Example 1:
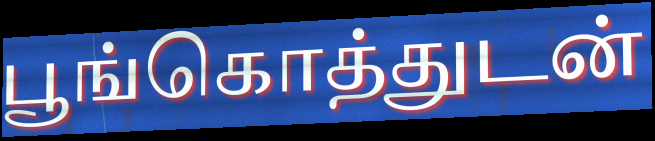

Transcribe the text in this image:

பூங்கொத்துடன்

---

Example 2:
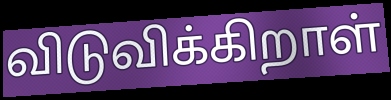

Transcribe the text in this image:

விடுவிக்கிறாள்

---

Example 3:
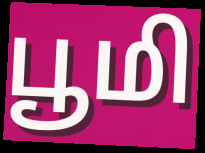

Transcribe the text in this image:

பூமி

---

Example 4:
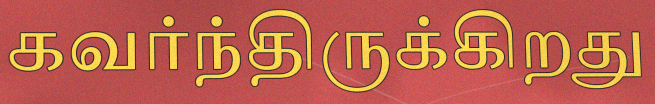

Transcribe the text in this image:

கவர்ந்திருக்கிறது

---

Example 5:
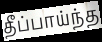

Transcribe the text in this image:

தீப்பாய்ந்த